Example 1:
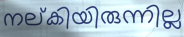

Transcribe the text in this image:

നല്കിയിരുന്നില്ല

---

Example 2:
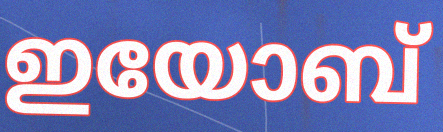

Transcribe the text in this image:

ഇയോബ്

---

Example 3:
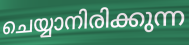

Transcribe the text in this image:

ചെയ്യാനിരിക്കുന്ന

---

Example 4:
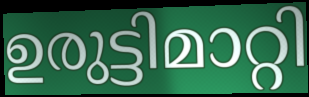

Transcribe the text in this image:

ഉരുട്ടിമാറ്റി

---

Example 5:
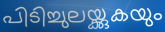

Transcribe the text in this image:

പിടിച്ചുലയ്ക്കുകയും